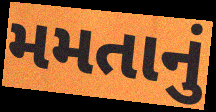
મમતાનું